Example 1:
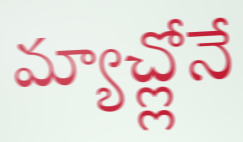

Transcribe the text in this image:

మ్యాచ్ల్లోనే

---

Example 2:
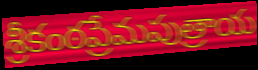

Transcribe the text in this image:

శ్రీకంఠప్రేమపుత్రాయ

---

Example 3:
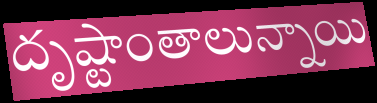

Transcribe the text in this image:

దృష్టాంతాలున్నాయి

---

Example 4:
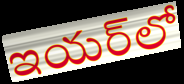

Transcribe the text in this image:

ఇయర్‌లో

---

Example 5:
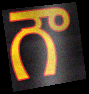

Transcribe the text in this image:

గౌ